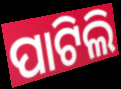
ପାଟିଲି